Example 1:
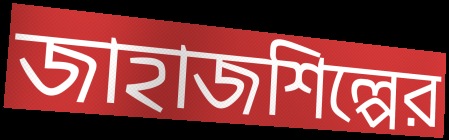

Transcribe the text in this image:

জাহাজশিল্পের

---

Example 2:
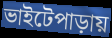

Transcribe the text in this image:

ভাইটেপাড়ায়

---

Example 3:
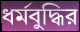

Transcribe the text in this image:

ধর্মবুদ্ধির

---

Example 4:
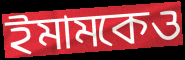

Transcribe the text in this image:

ইমামকেও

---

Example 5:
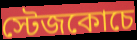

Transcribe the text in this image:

স্টেজকোচে